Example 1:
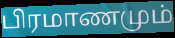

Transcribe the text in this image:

பிரமாணமும்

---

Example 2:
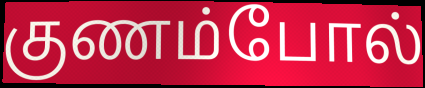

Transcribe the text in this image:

குணம்போல்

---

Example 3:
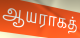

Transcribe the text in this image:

ஆயராகத்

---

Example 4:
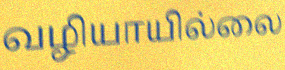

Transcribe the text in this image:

வழியாயில்லை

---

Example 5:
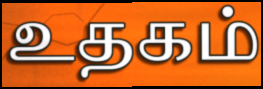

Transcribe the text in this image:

உதகம்